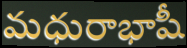
మధురాభాషీ